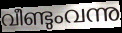
വീണ്ടുംവന്നു